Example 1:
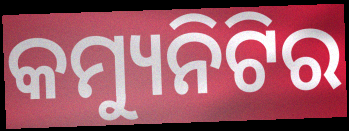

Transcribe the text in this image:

କମ୍ୟୁନିଟିର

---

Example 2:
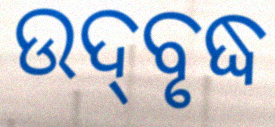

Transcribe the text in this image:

ଉଦ୍‌ବୃଦ୍ଧ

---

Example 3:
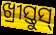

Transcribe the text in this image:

ଖ୍ରୀସ୍ତୁସ୍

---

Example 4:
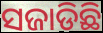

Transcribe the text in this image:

ସଜାଡିଛି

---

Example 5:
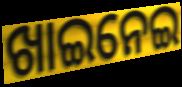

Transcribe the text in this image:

ଖାଇନେଇ